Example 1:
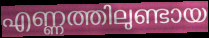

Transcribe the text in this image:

എണ്ണത്തിലുണ്ടായ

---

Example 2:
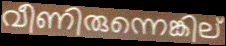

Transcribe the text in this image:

വീണിരുന്നെങ്കില്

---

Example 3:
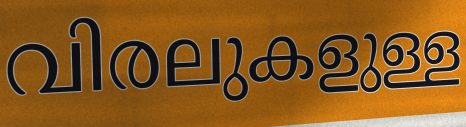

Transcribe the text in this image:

വിരലുകളുള്ള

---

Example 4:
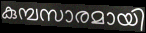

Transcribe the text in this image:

കുമ്പസാരമായി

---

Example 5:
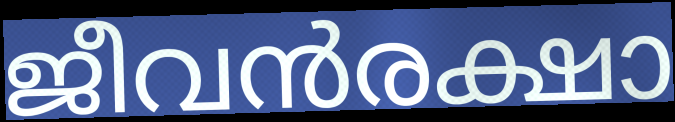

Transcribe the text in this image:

ജീവൻരക്ഷാ